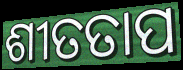
ଶୀତତାପ